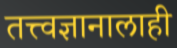
तत्त्वज्ञानालाही